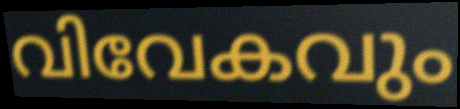
വിവേകവും